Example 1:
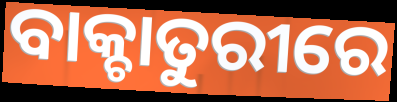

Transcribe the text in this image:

ବାକ୍ଚାତୁରୀରେ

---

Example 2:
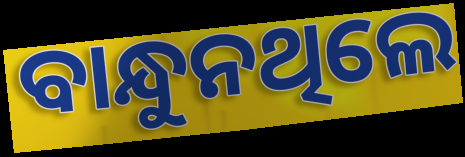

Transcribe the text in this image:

ବାନ୍ଧୁନଥିଲେ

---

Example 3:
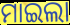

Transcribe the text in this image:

ମାଇଲା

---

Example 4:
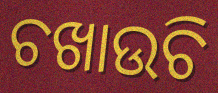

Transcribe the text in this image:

ଚଖାଉଚି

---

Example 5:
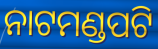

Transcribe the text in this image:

ନାଟମଣ୍ଡପଟି